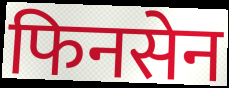
फिनसेन